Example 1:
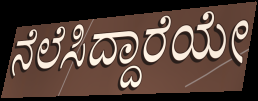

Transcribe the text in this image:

ನೆಲೆಸಿದ್ದಾರೆಯೇ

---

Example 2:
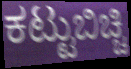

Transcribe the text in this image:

ಕಟ್ಟುಬಿಚ್ಚಿ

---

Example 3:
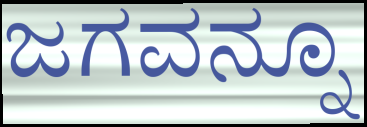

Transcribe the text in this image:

ಜಗವನ್ನೂ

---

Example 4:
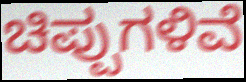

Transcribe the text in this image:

ಚಿಪ್ಪುಗಳಿವೆ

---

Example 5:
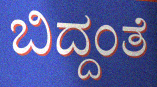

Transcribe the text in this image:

ಬಿದ್ದಂತೆ